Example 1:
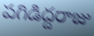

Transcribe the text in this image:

పగిడిద్దరాజు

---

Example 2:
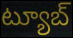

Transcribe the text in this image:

ట్యూబ్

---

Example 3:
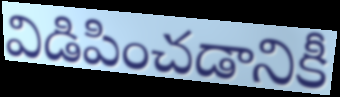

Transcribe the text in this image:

విడిపించడానికీ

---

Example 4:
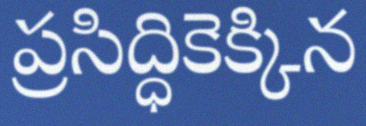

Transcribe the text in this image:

ప్రసిద్ధికెక్కిన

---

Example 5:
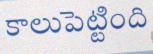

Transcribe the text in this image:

కాలుపెట్టింది